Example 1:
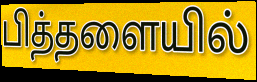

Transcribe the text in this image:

பித்தளையில்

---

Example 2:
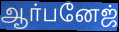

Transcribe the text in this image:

ஆர்பனேஜ்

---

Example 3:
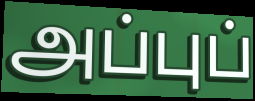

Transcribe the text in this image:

அப்புப்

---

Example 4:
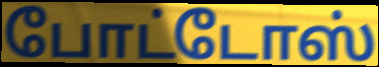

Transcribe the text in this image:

போட்டோஸ்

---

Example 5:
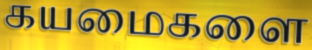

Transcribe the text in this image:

கயமைகளை